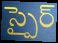
స్పైర్